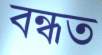
বন্ধত